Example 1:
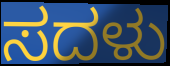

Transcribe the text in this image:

ಸದಳು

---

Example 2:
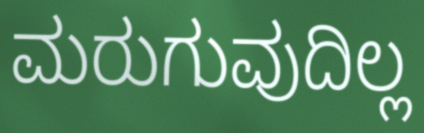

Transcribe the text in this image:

ಮರುಗುವುದಿಲ್ಲ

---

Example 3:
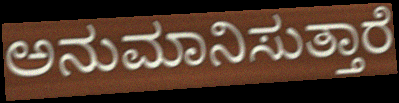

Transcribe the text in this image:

ಅನುಮಾನಿಸುತ್ತಾರೆ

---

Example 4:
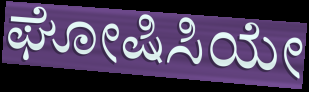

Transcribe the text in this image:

ಘೋಷಿಸಿಯೇ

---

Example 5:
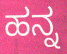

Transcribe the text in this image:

ಹನ್ನ